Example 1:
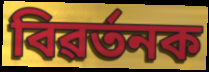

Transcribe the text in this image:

বিৱৰ্তনক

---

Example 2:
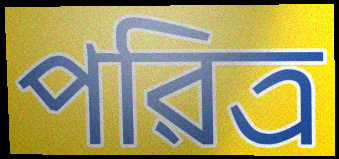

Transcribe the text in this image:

পৱিত্ৰ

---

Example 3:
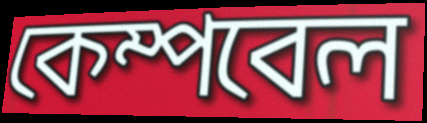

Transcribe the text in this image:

কেম্পবেল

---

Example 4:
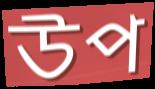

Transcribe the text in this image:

উপ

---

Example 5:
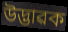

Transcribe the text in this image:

উদ্ভাৱক